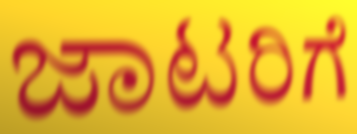
ಜಾಟರಿಗೆ